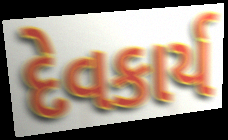
દેવકાર્ય